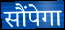
सौंपेगा